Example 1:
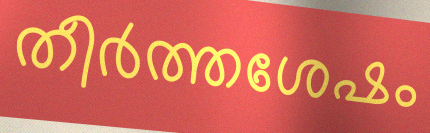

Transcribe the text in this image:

തീർത്തശേഷം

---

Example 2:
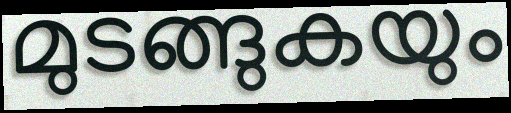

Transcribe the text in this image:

മുടങ്ങുകയും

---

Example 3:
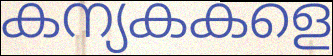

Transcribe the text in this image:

കന്യകകളെ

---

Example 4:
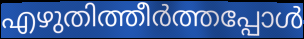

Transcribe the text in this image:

എഴുതിത്തീർത്തപ്പോൾ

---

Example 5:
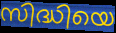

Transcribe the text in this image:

സിദ്ധിയെ